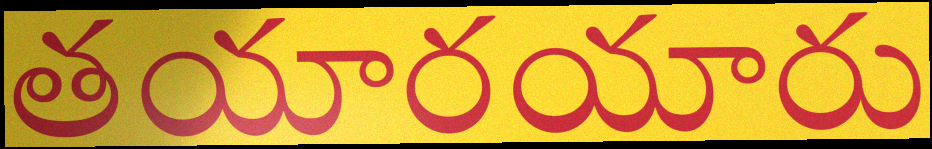
తయారయారు